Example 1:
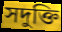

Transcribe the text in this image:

সদুক্তি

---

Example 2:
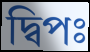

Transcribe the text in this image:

দ্বিপঃ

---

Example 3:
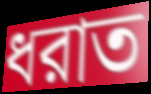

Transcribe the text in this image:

ধরাত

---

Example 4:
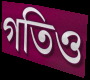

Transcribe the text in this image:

গতিও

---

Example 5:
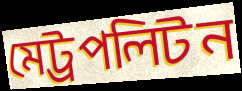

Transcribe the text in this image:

মেট্রপলিটন